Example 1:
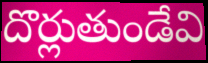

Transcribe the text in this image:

దొర్లుతుండేవి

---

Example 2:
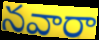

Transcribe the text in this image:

నవారా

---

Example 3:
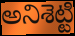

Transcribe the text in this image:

అనిశెట్టి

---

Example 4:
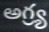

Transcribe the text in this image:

అగ్ర్య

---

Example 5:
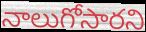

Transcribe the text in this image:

నాలుగోసారని